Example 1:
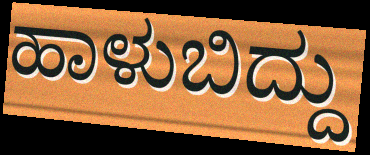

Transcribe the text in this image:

ಹಾಳುಬಿದ್ದು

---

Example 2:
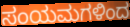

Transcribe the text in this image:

ಸಂಯಮಗಳಿಂದ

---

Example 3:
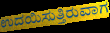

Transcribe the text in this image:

ಉದಯಿಸುತ್ತಿರುವಾಗ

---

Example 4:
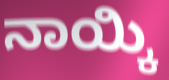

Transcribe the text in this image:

ನಾಯ್ಕಿ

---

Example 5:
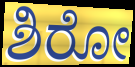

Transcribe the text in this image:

ಶಿರೋ